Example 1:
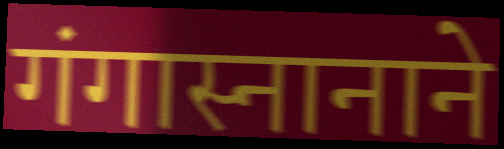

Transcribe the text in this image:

गंगास्नानाने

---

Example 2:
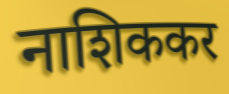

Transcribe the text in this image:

नाशिककर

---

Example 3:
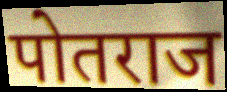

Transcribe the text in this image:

पोतराज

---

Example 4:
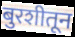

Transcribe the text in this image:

बुरशीतून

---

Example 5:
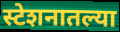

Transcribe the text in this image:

स्टेशनातल्या